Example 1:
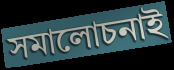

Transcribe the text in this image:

সমালোচনাই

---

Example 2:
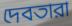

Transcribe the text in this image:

দেবতারা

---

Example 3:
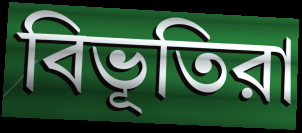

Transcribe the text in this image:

বিভূতিরা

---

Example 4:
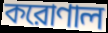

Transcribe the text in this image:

করোণাল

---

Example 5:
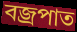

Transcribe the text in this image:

বজ্রপাত